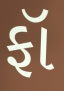
ફૉ